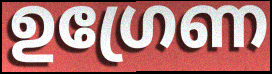
ഉഗ്രേണ